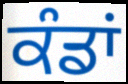
ਕੰਡਾਂ